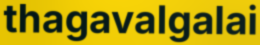
thagavalgalai